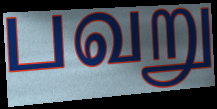
பவறு